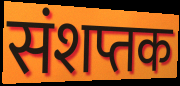
संशप्तक